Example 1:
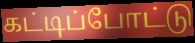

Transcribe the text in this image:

கட்டிப்போட்டு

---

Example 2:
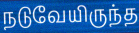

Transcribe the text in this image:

நடுவேயிருந்த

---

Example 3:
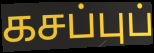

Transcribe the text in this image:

கசப்புப்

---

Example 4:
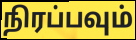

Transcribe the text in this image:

நிரப்பவும்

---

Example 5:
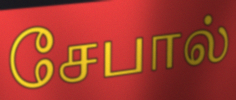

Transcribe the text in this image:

சேபால்